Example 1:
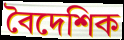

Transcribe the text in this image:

বৈদেশিক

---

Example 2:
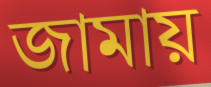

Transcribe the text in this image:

জামায়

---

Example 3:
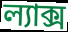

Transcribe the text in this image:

ল্যাক্স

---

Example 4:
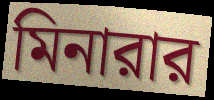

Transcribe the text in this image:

মিনারার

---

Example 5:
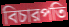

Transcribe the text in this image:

বিচারপতি